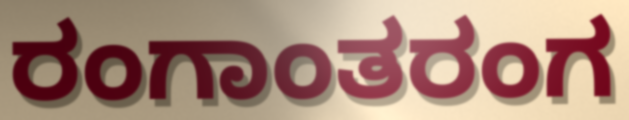
ರಂಗಾಂತರಂಗ